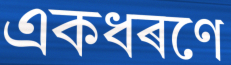
একধৰণে